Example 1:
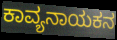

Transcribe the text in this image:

ಕಾವ್ಯನಾಯಕನ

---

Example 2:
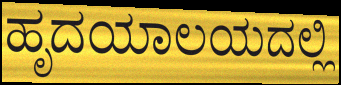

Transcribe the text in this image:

ಹೃದಯಾಲಯದಲ್ಲಿ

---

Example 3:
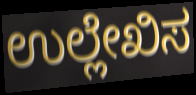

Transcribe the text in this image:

ಉಲ್ಲೇಖಿಸ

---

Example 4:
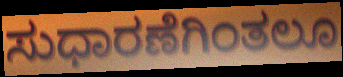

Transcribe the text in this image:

ಸುಧಾರಣೆಗಿಂತಲೂ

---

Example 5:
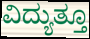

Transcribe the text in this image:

ವಿದ್ಯುತ್ತೂ